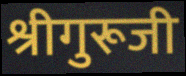
श्रीगुरूजी